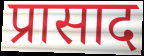
प्रासाद